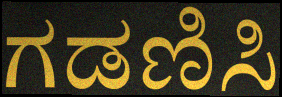
ಗಡಣಿಸಿ